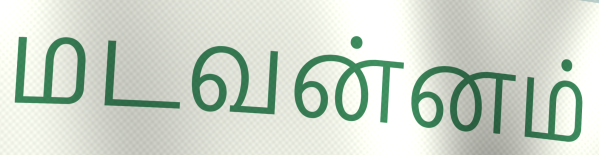
மடவன்னம்